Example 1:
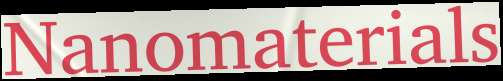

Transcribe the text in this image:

Nanomaterials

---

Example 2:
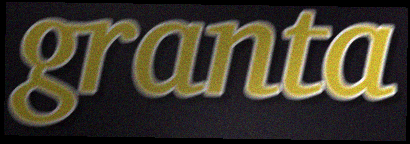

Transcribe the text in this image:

granta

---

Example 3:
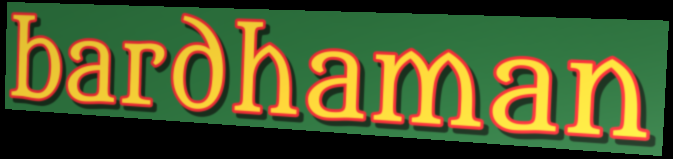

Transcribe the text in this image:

bardhaman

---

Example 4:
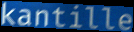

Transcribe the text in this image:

kantille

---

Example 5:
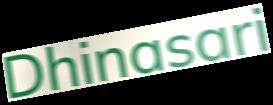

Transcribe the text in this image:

Dhinasari